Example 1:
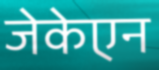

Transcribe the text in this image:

जेकेएन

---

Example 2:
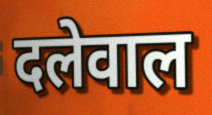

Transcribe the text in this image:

दलेवाल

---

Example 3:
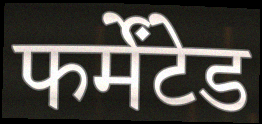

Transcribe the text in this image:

फर्मेंटेड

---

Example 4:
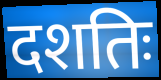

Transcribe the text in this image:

दशतिः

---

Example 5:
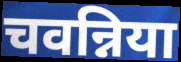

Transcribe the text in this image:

चवन्निया